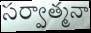
సర్వాత్మనా